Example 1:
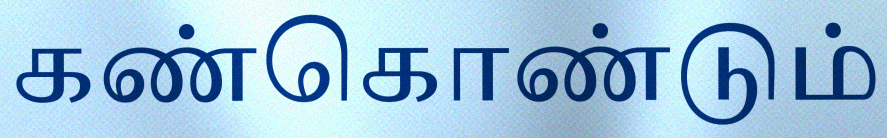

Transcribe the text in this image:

கண்கொண்டும்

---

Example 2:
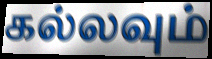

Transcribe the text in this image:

கல்லவும்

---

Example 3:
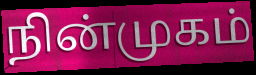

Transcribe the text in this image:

நின்முகம்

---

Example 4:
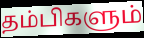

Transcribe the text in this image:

தம்பிகளும்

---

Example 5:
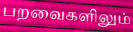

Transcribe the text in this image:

பறவைகளிலும்